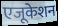
एजूकेशन